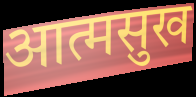
आत्मसुख